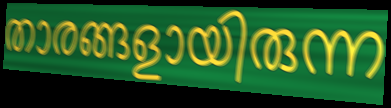
താരങ്ങളായിരുന്ന